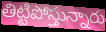
తిట్టిపోస్తున్నారు